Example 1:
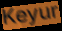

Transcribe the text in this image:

Keyur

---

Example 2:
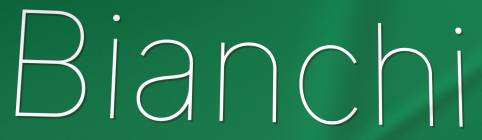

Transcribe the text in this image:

Bianchi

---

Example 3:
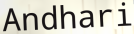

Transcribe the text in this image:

Andhari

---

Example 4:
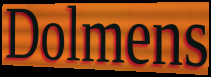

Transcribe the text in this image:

Dolmens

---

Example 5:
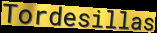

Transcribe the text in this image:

Tordesillas